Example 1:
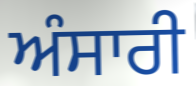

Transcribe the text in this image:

ਅੰਸਾਰੀ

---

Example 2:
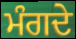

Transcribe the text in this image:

ਮੰਗਦੇ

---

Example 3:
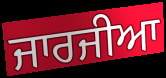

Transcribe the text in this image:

ਜਾਰਜੀਆ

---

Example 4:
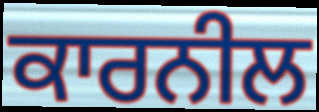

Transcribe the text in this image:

ਕਾਰਨੀਲ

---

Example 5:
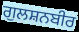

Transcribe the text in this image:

ਗੁਲਸ਼ਨਬੀਰ